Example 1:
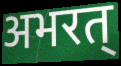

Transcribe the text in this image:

अभरत्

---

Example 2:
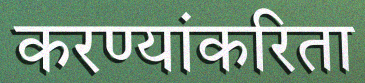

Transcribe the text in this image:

करण्यांकरिता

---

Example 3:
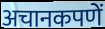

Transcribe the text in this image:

अचानकपणें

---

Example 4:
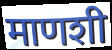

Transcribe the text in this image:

माणशी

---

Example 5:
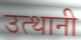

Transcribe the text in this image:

उत्थानी